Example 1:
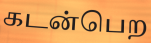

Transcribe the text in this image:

கடன்பெற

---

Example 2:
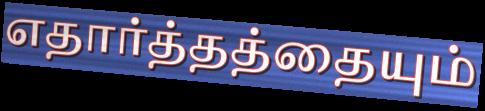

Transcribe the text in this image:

எதார்த்தத்தையும்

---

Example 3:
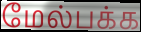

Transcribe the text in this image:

மேல்பக்க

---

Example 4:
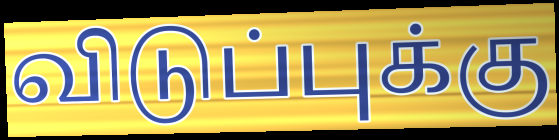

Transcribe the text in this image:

விடுப்புக்கு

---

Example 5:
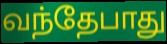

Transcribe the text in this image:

வந்தேபாது